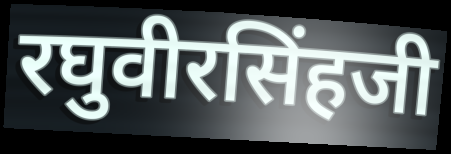
रघुवीरसिंहजी